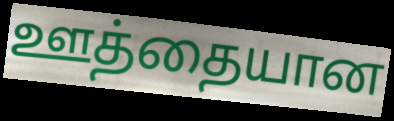
ஊத்தையான